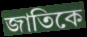
জাতিকে